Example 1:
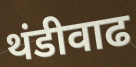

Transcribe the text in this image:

थंडीवाढ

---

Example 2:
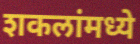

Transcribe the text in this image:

शकलांमध्ये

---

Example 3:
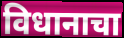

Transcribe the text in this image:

विधानाचा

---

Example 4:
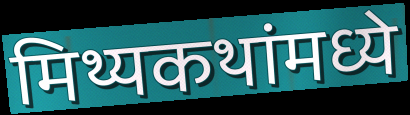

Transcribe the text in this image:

मिथ्यकथांमध्ये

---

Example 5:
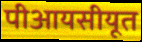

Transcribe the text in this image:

पीआयसीयूत